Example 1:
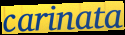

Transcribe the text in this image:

carinata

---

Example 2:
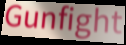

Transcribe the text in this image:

Gunfight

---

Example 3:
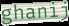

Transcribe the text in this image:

ghanij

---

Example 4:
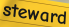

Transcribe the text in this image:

steward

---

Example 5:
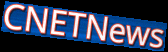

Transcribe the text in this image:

CNETNews